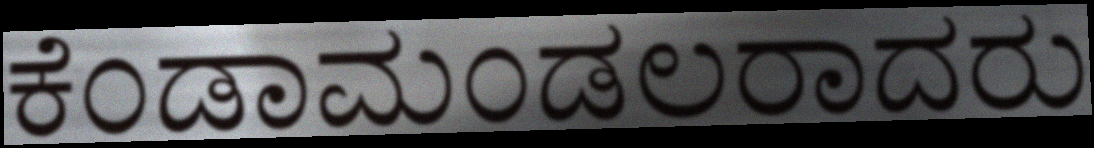
ಕೆಂಡಾಮಂಡಲರಾದರು